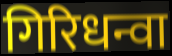
गिरिधन्वा